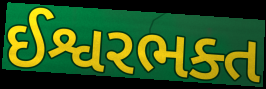
ઈશ્વરભક્ત